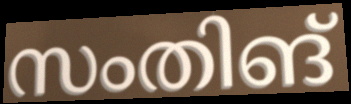
സംതിങ്